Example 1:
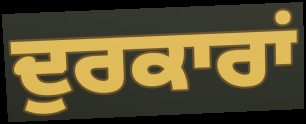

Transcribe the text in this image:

ਦੁਰਕਾਰਾਂ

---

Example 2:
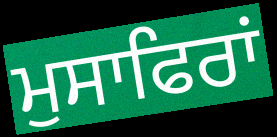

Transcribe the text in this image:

ਮੁਸਾਫਿਰਾਂ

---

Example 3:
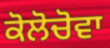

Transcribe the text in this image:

ਕੋਲੋਚੋਵਾ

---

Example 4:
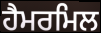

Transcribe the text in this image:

ਹੈਮਰਮਿਲ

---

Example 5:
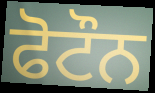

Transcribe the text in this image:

ਫੋਟੌਨ